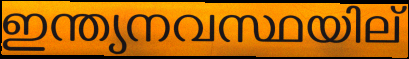
ഇന്ത്യനവസ്ഥയില്